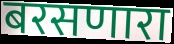
बरसणारा